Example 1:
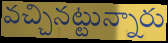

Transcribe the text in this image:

వచ్చినట్టున్నారు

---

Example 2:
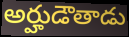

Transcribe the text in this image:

అర్హుడౌతాడు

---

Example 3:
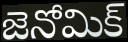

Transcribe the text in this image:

జెనోమిక్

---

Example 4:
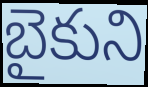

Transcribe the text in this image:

బైకుని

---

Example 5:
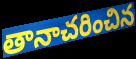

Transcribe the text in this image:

తానాచరించిన